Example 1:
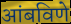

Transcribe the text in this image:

आंबविणे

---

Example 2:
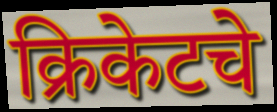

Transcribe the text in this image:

क्रिकेटचे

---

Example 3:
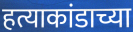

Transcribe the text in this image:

हत्याकांडाच्या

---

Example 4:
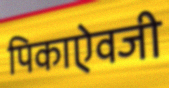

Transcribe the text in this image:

पिकाऐवजी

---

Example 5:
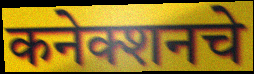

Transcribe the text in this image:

कनेक्शनचे